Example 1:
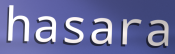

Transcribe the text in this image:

hasara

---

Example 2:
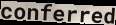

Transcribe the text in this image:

conferred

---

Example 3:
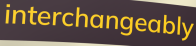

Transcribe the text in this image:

interchangeably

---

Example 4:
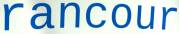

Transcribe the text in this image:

rancour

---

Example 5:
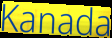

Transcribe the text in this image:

Kanada